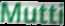
Mutti